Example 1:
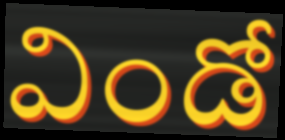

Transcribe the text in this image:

విండో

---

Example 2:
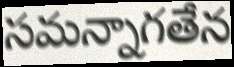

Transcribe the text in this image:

సమన్నాగతేన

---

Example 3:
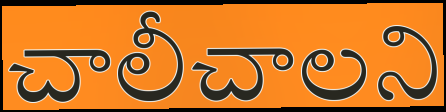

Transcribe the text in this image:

చాలీచాలని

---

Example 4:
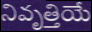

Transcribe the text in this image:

నివృత్తియే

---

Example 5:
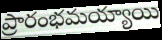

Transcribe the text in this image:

ప్రారంభమయ్యాయి